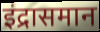
इंद्रासमान